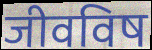
जीवविष